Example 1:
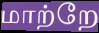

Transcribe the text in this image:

மாற்றே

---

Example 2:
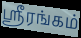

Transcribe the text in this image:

ஸ்ரீரங்கம்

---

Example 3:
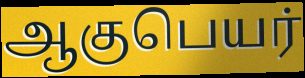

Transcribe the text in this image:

ஆகுபெயர்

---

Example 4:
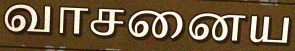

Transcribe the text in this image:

வாசனைய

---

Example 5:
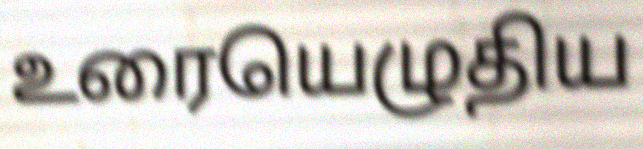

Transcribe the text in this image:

உரையெழுதிய